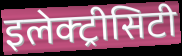
इलेक्ट्रीसिटी